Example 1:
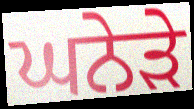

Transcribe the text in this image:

ਘਨੇੜੇ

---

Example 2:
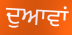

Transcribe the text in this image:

ਦੁਆਵਾਂ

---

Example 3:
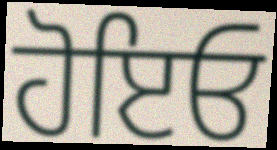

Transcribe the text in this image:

ਹੋਇਓ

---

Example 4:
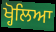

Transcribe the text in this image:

ਖ੍ਹੋਲਿਆ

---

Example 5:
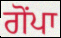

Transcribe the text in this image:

ਗੋਂਪਾ